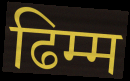
ढिम्म